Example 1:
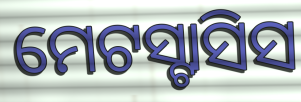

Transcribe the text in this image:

ମେଟସ୍ଟାସିସ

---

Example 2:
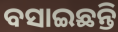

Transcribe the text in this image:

ବସାଇଛନ୍ତି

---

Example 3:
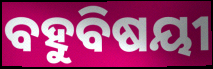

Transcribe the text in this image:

ବହୁବିଷୟୀ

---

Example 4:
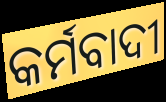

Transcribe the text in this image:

କର୍ମବାଦୀ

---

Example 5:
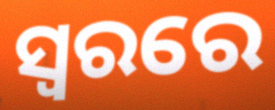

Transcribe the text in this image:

ସ୍ବରରେ